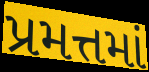
પ્રમત્તમાં